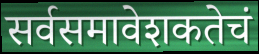
सर्वसमावेशकतेचं